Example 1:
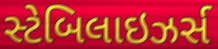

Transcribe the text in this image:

સ્ટેબિલાઇઝર્સ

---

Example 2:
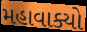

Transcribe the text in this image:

મહાવાક્યો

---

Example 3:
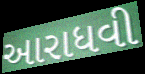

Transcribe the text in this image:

આરાધવી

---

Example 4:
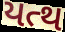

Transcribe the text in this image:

યત્થ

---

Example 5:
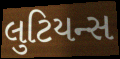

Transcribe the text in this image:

લુટિયન્સ